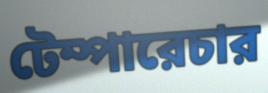
টেম্পারেচার